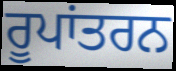
ਰੂਪਾਂਤਰਨ